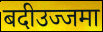
बदीउज्जमा